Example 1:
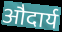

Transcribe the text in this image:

औदार्य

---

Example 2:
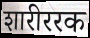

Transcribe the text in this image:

शारीररक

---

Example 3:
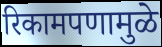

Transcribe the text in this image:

रिकामपणामुळे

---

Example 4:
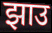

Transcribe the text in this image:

झाउ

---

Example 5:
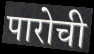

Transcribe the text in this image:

पारोची